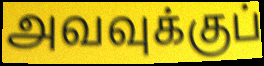
அவவுக்குப்